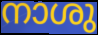
നാശു